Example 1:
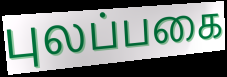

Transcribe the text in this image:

புலப்பகை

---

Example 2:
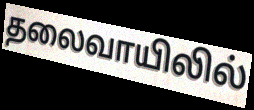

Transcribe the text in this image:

தலைவாயிலில்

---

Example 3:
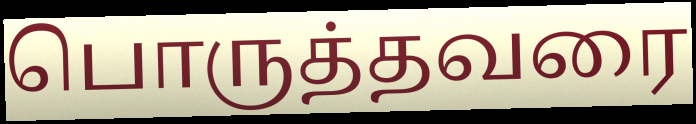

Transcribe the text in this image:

பொருத்தவரை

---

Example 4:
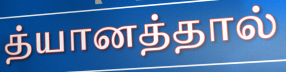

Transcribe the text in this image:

த்யானத்தால்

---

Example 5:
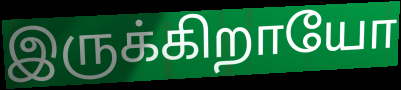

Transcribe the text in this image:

இருக்கிறாயோ